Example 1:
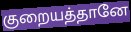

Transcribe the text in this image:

குறையத்தானே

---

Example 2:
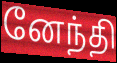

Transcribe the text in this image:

னேந்தி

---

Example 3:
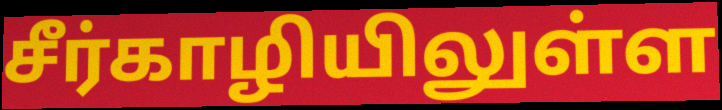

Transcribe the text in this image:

சீர்காழியிலுள்ள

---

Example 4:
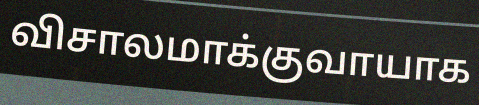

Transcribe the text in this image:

விசாலமாக்குவாயாக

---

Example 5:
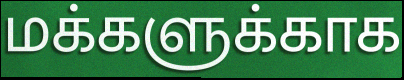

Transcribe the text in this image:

மக்களுக்காக